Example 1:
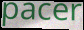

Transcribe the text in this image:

pacer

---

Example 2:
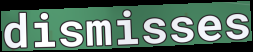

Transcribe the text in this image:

dismisses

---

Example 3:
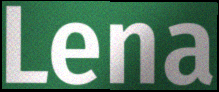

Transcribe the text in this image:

Lena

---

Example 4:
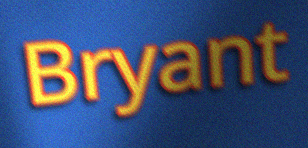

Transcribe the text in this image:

Bryant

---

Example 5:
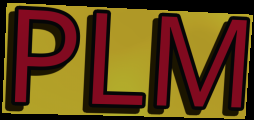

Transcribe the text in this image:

PLM